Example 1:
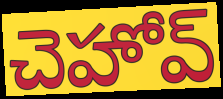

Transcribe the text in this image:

చెహోవ్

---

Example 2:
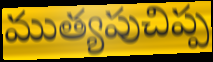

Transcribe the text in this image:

ముత్యపుచిప్ప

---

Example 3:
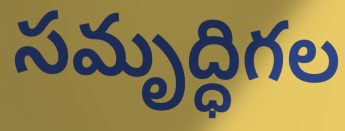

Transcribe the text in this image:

సమృద్ధిగల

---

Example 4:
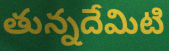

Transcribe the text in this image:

తున్నదేమిటి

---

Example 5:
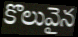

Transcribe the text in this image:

కొలువైన